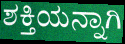
ಶಕ್ತಿಯನ್ನಾಗಿ